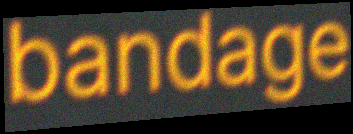
bandage